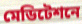
মেডিটেশনে